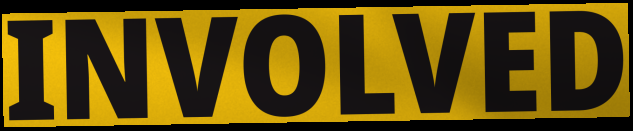
INVOLVED